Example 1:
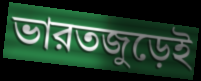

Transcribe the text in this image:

ভারতজুড়েই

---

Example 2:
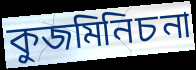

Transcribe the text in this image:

কুজমিনিচনা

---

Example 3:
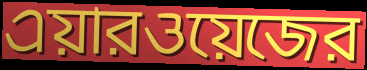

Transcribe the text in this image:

এয়ারওয়েজের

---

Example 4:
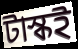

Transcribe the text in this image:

টাস্কই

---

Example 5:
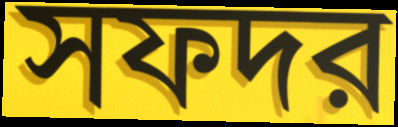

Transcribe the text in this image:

সফদর